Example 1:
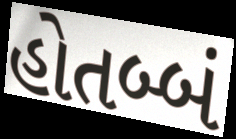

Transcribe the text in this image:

હોતબ્બં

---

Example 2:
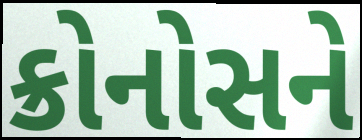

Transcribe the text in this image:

ક્રોનોસને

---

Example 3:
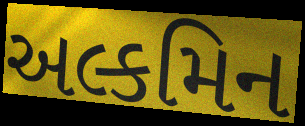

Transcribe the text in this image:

અલ્કમિન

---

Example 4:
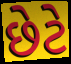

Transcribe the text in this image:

છેટે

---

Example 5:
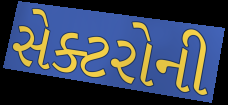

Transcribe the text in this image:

સેક્ટરોની